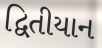
દ્વિતીયાન